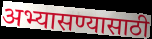
अभ्यासण्यासाठी